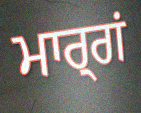
ਮਾਰ੍ਗਂ